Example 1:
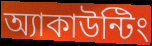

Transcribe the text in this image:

অ্যাকাউন্টিং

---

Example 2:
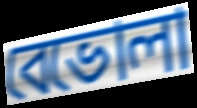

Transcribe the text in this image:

বেভোলা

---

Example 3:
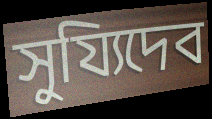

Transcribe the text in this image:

সুয্যিদেব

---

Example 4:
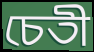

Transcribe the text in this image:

চেতী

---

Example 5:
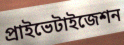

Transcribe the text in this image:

প্রাইভেটাইজেশন